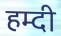
हम्दी